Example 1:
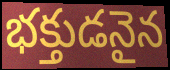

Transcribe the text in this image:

భక్తుడనైన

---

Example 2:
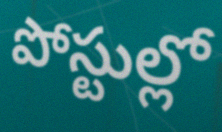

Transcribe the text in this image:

పోస్టుల్లో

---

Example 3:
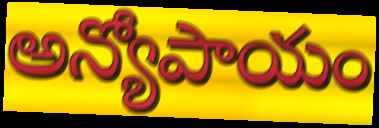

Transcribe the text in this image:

అన్యోపాయం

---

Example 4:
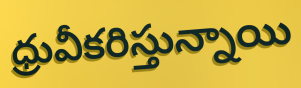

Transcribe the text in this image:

ధ్రువీకరిస్తున్నాయి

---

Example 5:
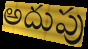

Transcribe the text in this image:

అదుపు